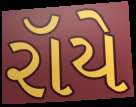
રૉયે